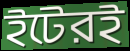
ইটেরই